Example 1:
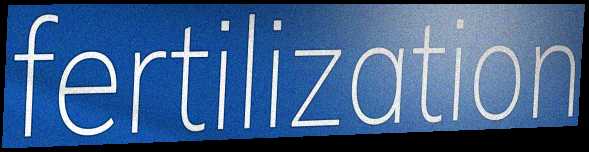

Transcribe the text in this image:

fertilization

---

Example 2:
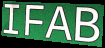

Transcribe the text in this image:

IFAB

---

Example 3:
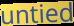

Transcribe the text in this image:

untied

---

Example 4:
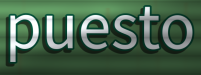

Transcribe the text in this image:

puesto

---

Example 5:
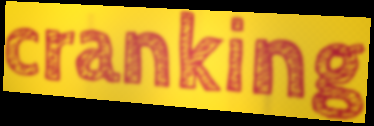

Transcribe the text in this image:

cranking